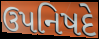
ઉપનિષદે